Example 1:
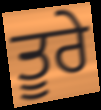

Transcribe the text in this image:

ਤੂਰੇ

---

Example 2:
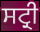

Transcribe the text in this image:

ਸਟ੍ਰੀ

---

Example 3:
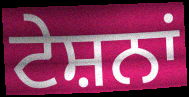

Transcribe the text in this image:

ਟੇਸ਼ਨਾਂ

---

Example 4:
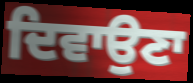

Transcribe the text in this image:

ਦਿਵਾਉਣਾ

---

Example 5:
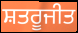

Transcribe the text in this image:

ਸ਼ਤਰੂਜੀਤ